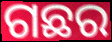
ଗଛର